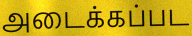
அடைக்கப்பட